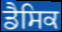
ਡੈਸਿਕ